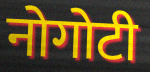
नोगोटी